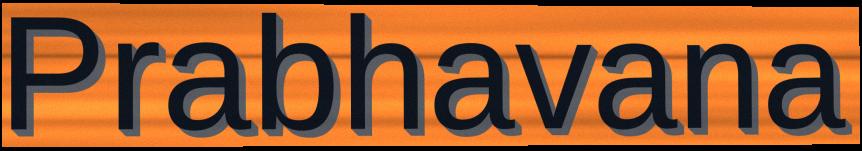
Prabhavana